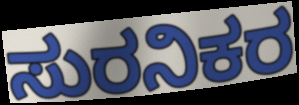
ಸುರನಿಕರ